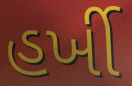
હર્ખી